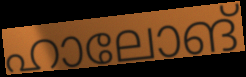
ഹാലോങ്